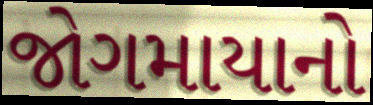
જોગમાયાનો